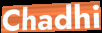
Chadhi